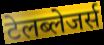
टेलब्लेजर्स